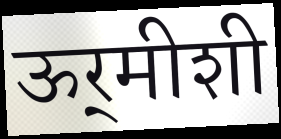
ऊर्मीशी